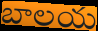
బాలయ